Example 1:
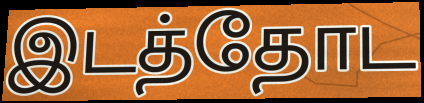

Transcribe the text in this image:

இடத்தோட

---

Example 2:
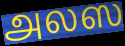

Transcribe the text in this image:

அலஸ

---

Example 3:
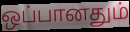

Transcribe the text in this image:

ஒப்பானதும்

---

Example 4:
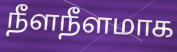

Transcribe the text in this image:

நீளநீளமாக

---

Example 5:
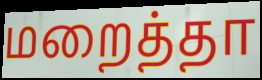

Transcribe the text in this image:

மறைத்தா